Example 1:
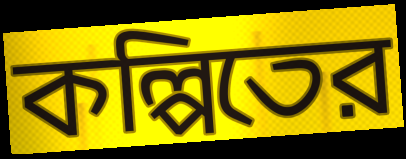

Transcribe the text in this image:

কল্পিতের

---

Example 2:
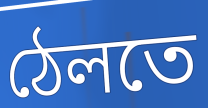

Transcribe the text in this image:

ঠেলতে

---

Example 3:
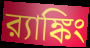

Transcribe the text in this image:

র‍্যাঙ্কিং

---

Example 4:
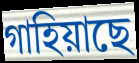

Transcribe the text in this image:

গাহিয়াছে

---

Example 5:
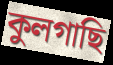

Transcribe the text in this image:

কুলগাছি